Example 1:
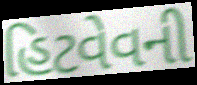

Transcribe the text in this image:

હિટવેવની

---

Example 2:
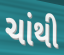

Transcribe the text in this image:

ચાંથી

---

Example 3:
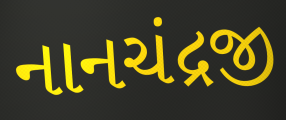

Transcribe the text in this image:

નાનચંદ્રજી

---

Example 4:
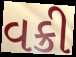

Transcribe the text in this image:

વક્રી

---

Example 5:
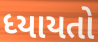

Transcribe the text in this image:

ધ્યાયતો